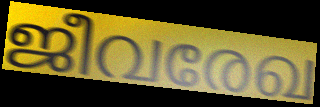
ജീവരേഖ